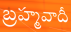
బ్రహ్మవాదీ